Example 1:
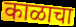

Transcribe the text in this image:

काळाचा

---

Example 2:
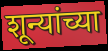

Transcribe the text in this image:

शून्यांच्या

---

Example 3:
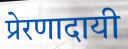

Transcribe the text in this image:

प्रेरणादायी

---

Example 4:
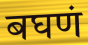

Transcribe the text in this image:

बघणं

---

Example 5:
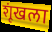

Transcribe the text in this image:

श्रृंखला